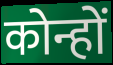
कोन्हों